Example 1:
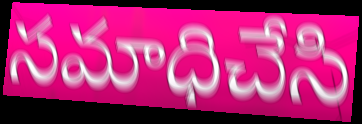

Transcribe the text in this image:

సమాధిచేసి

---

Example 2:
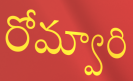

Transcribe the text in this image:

రోమ్వారి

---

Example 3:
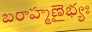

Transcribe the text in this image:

బరాహ్మణైభ్యః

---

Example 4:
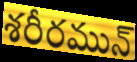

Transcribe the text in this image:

శరీరమున్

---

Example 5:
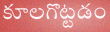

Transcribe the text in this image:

కూలగొట్టడం